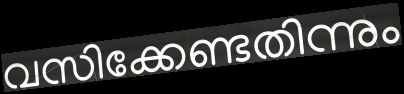
വസിക്കേണ്ടതിന്നും